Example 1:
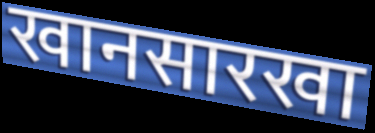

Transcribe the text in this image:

खानसारखा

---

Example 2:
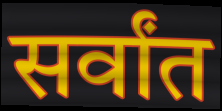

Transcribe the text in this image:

सर्वांत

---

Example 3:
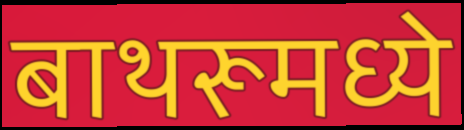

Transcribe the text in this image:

बाथरूमध्ये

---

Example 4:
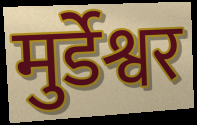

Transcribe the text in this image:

मुर्डेश्वर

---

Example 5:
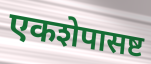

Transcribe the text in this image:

एकशेपासष्ट